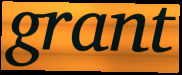
grant